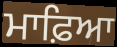
ਮਾਫ਼ਿਆ